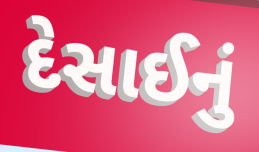
દેસાઈનું